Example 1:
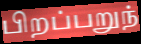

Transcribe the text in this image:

பிறப்பறுந்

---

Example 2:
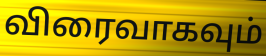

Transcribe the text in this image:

விரைவாகவும்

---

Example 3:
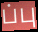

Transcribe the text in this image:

ப்பு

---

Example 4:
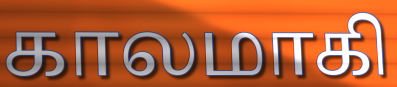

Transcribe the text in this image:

காலமாகி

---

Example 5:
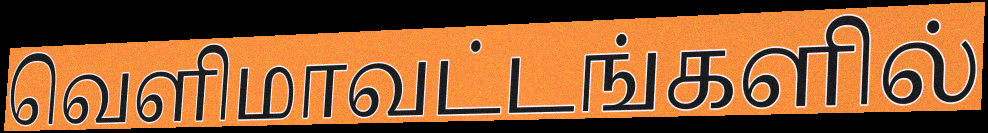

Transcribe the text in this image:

வெளிமாவட்டங்களில்